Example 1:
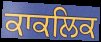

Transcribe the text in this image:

ਕਾਕਲਿਕ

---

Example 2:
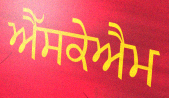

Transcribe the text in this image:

ਐੱਸਕੇਐਮ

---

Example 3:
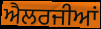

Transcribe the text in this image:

ਐਲਰਜੀਆਂ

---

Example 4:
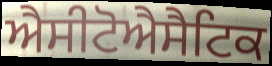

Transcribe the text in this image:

ਐਸੀਟੋਐਸੈਟਿਕ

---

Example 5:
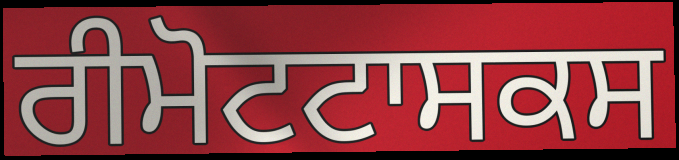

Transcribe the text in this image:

ਰੀਮੋਟਟਾਸਕਸ